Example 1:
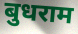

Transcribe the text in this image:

बुधराम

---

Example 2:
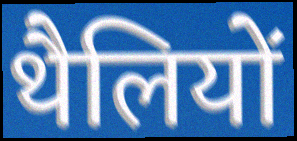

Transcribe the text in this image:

थैलियों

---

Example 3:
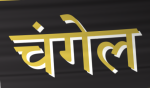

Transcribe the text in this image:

चंगेल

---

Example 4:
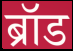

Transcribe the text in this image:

ब्रॉड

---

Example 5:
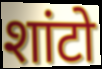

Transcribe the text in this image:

शांटो